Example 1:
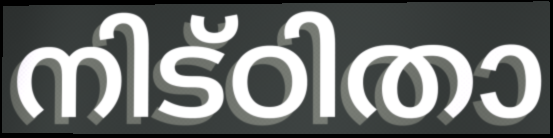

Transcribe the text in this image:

നിട്ഠിതാ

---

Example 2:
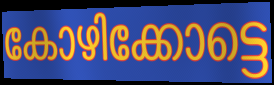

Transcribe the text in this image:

കോഴിക്കോട്ടെ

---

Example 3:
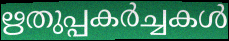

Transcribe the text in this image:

ഋതുപ്പകർച്ചകൾ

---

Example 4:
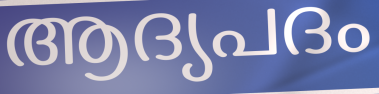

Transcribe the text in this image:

ആദ്യപദം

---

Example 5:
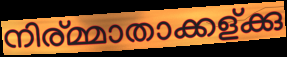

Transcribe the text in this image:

നിര്മ്മാതാക്കള്ക്കു